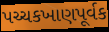
પચ્ચકખાણપૂર્વક